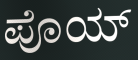
ಪೊಯ್